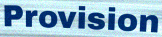
Provision